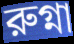
রুগ্না